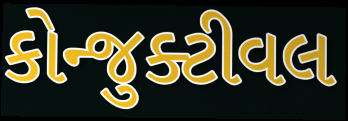
કોન્જુક્ટીવલ